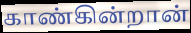
காண்கின்றான்